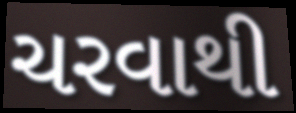
ચરવાથી